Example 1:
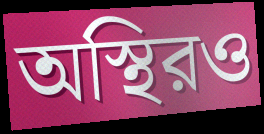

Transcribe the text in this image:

অস্থিরও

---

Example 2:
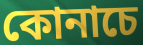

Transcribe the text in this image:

কোনাচে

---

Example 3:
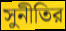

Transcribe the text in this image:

সুনীতির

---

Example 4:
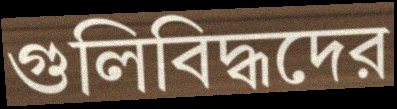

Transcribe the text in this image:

গুলিবিদ্ধদের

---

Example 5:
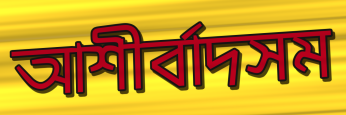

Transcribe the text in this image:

আশীর্বাদসম